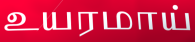
உயரமாய்